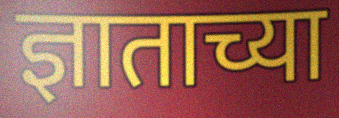
ज्ञाताच्या